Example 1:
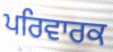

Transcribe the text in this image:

ਪਰਿਵਾਰਕ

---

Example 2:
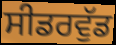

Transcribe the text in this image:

ਸੀਡਰਵੁੱਡ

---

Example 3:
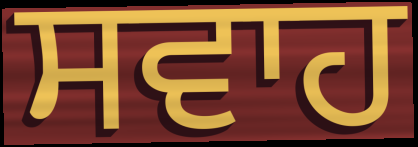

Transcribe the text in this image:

ਸਵਾਹ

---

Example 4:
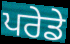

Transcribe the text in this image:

ਪਰੇਡੇ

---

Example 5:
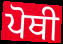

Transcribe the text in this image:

ਪੋਥੀ